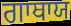
ਗਾਥਾਯ